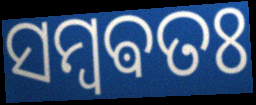
ସମ୍ବଵତଃ